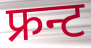
फ्रन्ट